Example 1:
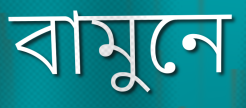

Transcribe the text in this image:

বামুনে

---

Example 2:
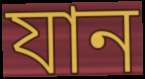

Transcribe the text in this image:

যান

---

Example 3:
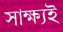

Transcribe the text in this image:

সাক্ষ্যই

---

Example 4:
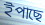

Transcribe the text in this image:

ইপাছে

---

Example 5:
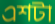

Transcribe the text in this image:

এশটা